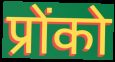
प्रोंको